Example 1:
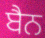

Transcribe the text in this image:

ਬੈਨ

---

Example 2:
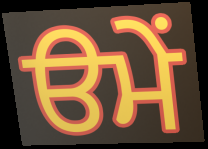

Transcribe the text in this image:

ੳਮੇਂ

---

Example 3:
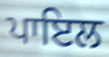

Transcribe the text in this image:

ਪਾਇਲ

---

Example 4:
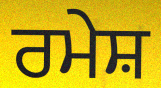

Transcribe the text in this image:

ਰਮੇਸ਼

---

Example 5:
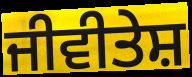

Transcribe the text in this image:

ਜੀਵੀਤੇਸ਼